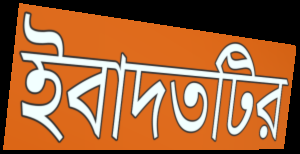
ইবাদতটির